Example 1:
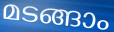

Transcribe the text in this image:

മടങ്ങാം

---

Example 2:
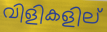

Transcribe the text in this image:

വിളികളില്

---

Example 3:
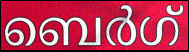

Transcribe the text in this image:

ബെർഗ്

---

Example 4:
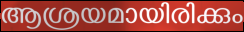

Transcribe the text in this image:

ആശ്രയമായിരിക്കും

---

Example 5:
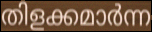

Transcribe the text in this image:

തിളക്കമാർന്ന